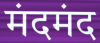
मंदमंद